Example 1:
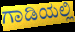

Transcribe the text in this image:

ಗಾಡಿಯಲ್ಲಿ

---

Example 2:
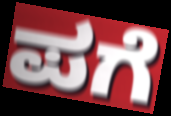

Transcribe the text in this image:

ಪಗೆ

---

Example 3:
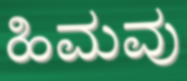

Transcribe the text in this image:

ಹಿಮವು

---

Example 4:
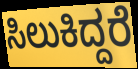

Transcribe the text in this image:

ಸಿಲುಕಿದ್ದರೆ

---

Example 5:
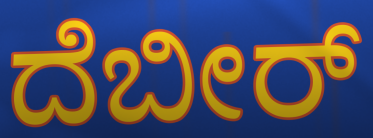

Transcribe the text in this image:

ದೆಬೀರ್